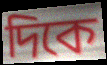
দিকে